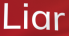
Liar